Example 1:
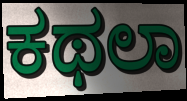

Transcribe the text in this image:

ಕಥಲಾ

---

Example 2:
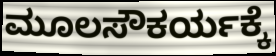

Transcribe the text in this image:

ಮೂಲಸೌಕರ್ಯಕ್ಕೆ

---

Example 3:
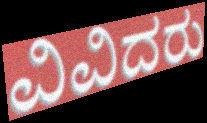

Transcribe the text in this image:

ವಿವಿದರು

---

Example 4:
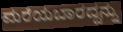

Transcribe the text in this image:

ಮರೆಯಬಾರದ್ದನ್ನು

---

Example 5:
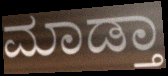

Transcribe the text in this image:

ಮಾಡ್ತಾ